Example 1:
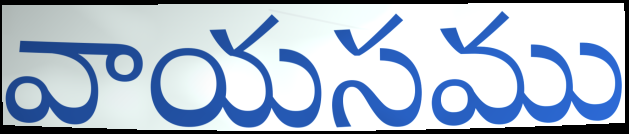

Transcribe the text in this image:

వాయసము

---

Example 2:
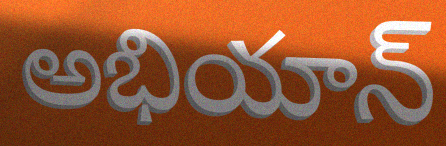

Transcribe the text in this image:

అభియాన్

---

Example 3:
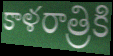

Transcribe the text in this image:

కాళరాత్రికి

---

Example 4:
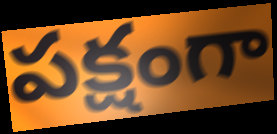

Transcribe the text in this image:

పక్షంగా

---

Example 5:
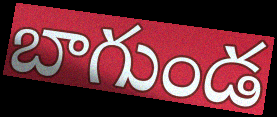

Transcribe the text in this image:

బాగుండ